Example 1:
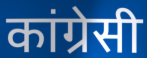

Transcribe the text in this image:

कांग्रेसी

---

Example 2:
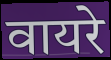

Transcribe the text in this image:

वायरे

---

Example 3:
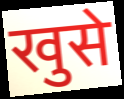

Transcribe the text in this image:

खुसे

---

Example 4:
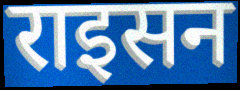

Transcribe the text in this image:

राइसन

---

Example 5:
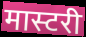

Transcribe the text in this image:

मास्टरी